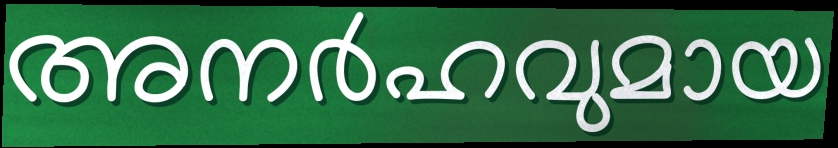
അനർഹവുമായ